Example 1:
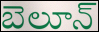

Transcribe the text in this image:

బెలూన్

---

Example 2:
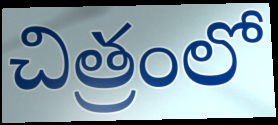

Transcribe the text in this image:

చిత్రంలో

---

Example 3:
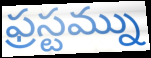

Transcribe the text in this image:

ఫ్రస్టమ్ను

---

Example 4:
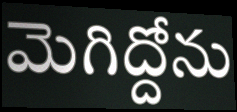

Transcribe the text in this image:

మెగిద్దోను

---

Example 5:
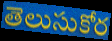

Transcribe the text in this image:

తెలుసుకోర